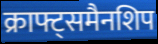
क्राफ्ट्समैनशिप